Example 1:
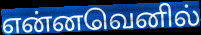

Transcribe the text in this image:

என்னவெனில்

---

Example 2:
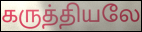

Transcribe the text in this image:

கருத்தியலே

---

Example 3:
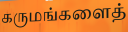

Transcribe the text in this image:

கருமங்களைத்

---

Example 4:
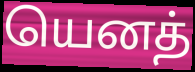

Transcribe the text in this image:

யெனத்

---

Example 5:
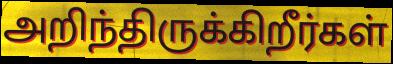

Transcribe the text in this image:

அறிந்திருக்கிறீர்கள்